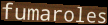
fumaroles